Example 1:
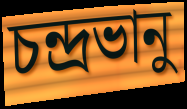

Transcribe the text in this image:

চন্দ্রভানু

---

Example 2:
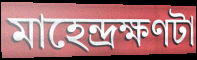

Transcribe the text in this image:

মাহেন্দ্রক্ষণটা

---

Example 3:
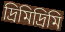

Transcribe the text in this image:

দ্রিমিদ্রিমি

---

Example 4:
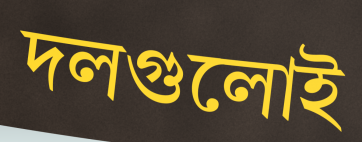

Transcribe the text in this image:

দলগুলোই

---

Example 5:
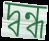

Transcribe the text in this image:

দ্বন্ধ